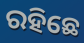
ରହିଛେ